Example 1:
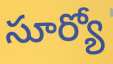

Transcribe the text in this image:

సూర్యో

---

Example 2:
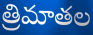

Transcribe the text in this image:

త్రిమాతల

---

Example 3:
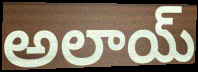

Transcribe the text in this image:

అలాయ్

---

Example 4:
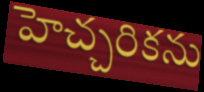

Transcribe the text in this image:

హెచ్చరికను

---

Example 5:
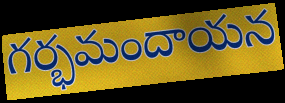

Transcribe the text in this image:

గర్భమందాయన